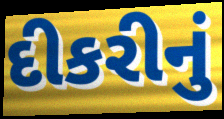
દીકરીનું